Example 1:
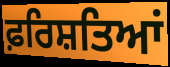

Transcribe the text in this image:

ਫ਼ਰਿਸ਼ਤਿਆਂ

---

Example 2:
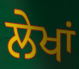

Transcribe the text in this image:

ਲੇਖਾਂ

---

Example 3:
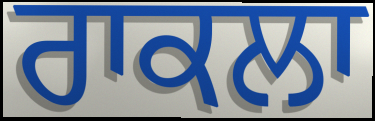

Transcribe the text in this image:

ਰਾਕਲਾ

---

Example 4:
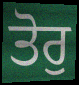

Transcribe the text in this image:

ਤੋਰੁ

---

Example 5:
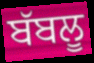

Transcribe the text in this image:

ਬੱਬਲੂ